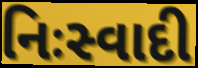
નિઃસ્વાદી